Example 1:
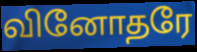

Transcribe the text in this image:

வினோதரே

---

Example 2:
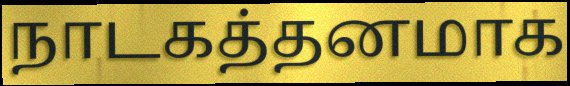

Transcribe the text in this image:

நாடகத்தனமாக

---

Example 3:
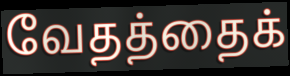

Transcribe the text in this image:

வேதத்தைக்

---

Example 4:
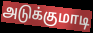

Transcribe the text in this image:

அடுக்குமாடி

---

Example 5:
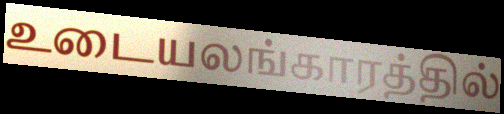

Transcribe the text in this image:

உடையலங்காரத்தில்